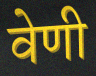
वेणी